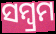
ସମ୍ବ୍ରମ